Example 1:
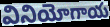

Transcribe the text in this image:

వినియోగాయ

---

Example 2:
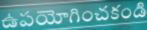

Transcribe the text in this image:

ఉపయోగించకండి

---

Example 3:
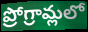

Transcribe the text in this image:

ప్రోగ్రామ్లలో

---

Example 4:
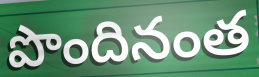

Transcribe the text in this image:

పొందినంత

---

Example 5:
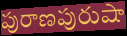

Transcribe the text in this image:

పురాణపురుషా